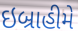
ઇબ્રાહીમે